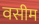
वसीम